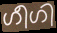
ഗീഗി